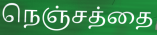
நெஞ்சத்தை